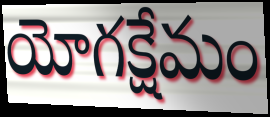
యోగక్షేమం